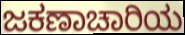
ಜಕಣಾಚಾರಿಯ